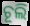
ଚୂଲି